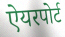
ऐयरपोर्ट